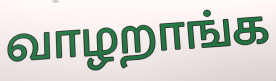
வாழறாங்க